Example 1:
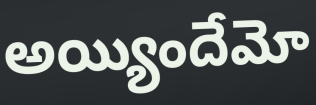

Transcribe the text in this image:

అయ్యిందేమో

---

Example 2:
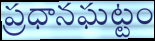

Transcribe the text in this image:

ప్రధానఘట్టం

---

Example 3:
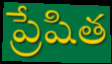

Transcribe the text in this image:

ప్రేషిత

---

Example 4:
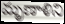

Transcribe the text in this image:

మృణాళిని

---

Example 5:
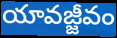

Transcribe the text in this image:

యావజ్జీవం